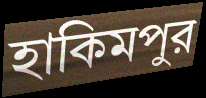
হাকিমপুর